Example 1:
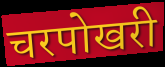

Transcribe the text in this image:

चरपोखरी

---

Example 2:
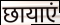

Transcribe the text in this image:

छायाएं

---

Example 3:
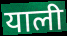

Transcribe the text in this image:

याली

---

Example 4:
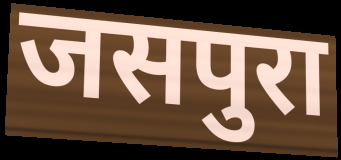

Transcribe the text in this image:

जसपुरा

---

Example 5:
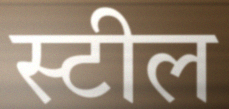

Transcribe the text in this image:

स्‍टील